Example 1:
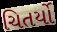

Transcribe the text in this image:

ચિતર્યો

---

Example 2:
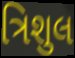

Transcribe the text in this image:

ત્રિશુલ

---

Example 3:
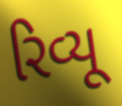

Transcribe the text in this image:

રિવ્યૂ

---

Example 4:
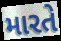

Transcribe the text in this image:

મારતે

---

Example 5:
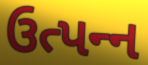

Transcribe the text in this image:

ઉત્પન્‍ન